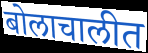
बोलाचालीत